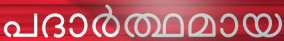
പദാർത്ഥമായ